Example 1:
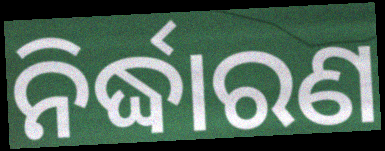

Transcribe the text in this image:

ନିର୍ଦ୍ଧାରଣ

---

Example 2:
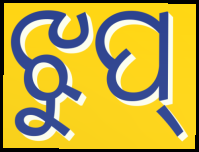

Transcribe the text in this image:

ଝୁପ୍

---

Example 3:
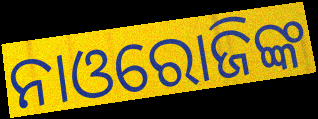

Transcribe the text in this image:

ନାଓରୋଜିଙ୍କ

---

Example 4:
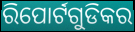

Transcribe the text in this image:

ରିପୋର୍ଟଗୁଡିକର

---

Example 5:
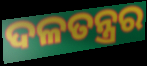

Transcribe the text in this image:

ଦଳତନ୍ତ୍ରର